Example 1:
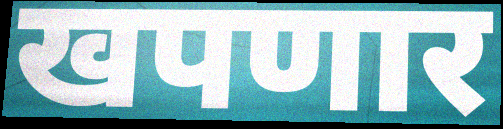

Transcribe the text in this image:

खपणार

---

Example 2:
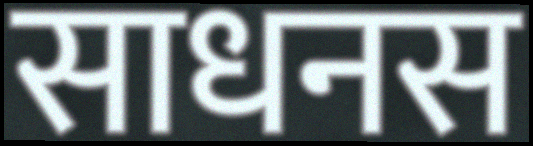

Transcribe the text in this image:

साधनस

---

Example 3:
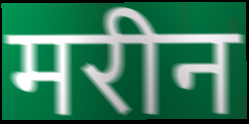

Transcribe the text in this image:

मरीन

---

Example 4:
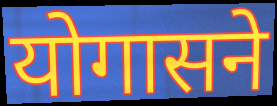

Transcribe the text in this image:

योगासने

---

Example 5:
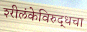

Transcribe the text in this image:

श्रीलंकेविरुद्धचा